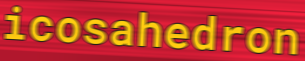
icosahedron